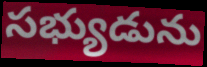
సభ్యుడును